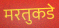
मरतुकडे